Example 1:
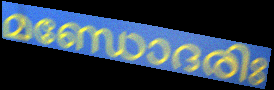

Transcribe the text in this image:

മണ്ഡോദരിഃ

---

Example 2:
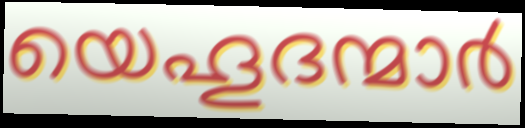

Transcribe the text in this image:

യെഹൂദന്മാർ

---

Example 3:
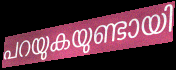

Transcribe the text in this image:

പറയുകയുണ്ടായി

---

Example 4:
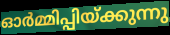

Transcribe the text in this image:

ഓർമ്മിപ്പിയ്ക്കുന്നു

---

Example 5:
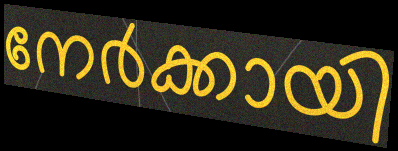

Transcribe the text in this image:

നേർക്കായി